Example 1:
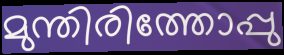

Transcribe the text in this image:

മുന്തിരിത്തോപ്പു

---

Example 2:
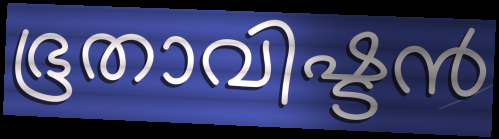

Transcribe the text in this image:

ഭൂതാവിഷ്ടൻ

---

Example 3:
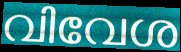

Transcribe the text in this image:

വിവേശ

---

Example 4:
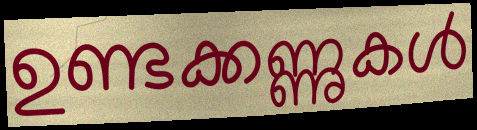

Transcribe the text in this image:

ഉണ്ടക്കണ്ണുകൾ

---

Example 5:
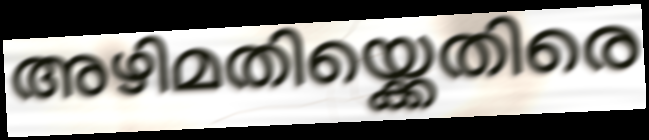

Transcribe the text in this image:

അഴിമതിയ്ക്കെതിരെ